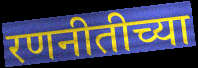
रणनीतीच्या